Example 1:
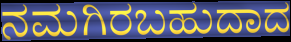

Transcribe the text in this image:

ನಮಗಿರಬಹುದಾದ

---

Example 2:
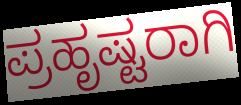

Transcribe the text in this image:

ಪ್ರಹೃಷ್ಟರಾಗಿ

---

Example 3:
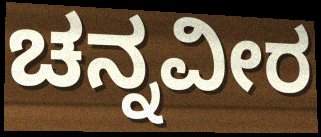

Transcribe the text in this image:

ಚನ್ನವೀರ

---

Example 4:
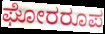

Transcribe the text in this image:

ಘೋರರೂಪ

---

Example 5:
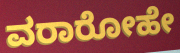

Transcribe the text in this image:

ವರಾರೋಹೇ